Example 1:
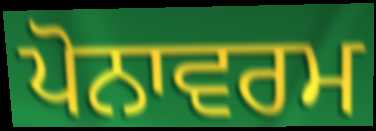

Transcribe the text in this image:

ਪੋਨਾਵਰਮ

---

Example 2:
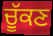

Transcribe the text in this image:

ਚੂੱਕਣ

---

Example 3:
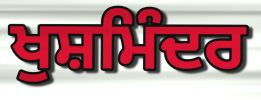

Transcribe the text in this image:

ਖੁਸ਼ਮਿੰਦਰ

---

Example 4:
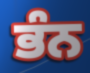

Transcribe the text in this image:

ਭੰਨ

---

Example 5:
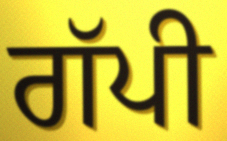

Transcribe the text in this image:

ਗੱਪੀ